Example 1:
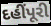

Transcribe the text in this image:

દહીંપૂરી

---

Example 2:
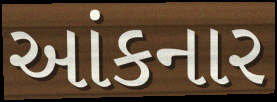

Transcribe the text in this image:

આંકનાર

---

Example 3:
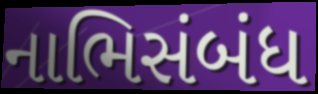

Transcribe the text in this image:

નાભિસંબંધ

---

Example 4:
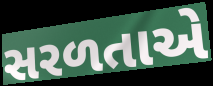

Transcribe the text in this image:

સરળતાએ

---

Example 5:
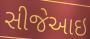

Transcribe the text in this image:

સીજેઆઇ